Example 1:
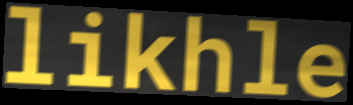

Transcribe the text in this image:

likhle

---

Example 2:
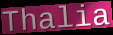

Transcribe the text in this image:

Thalia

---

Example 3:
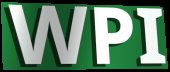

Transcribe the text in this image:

WPI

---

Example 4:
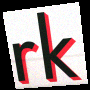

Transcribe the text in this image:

rk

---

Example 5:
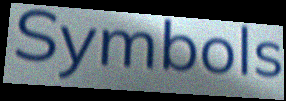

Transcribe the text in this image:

Symbols